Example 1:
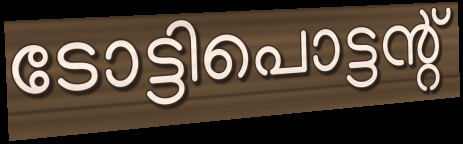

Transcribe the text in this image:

ടോട്ടിപൊട്ടന്റ്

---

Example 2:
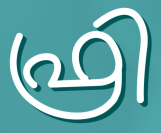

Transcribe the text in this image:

ഫ്രി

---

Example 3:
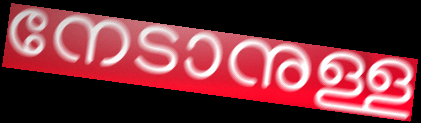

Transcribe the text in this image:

നേടാനുള്ള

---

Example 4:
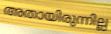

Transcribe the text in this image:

അതായിരുന്നില്ല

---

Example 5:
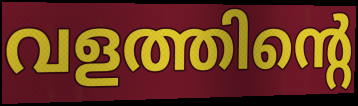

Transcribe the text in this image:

വളത്തിന്റെ